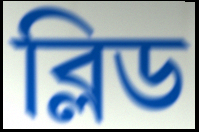
ব্লিড